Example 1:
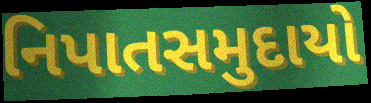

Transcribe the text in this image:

નિપાતસમુદાયો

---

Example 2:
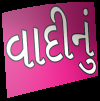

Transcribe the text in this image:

વાદીનું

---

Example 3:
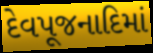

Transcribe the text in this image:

દેવપૂજનાદિમાં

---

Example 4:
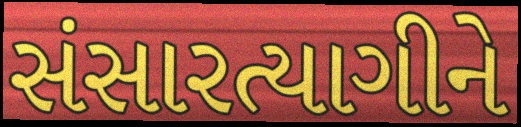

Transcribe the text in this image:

સંસારત્યાગીને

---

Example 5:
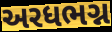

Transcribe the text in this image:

અરધભગ્ન